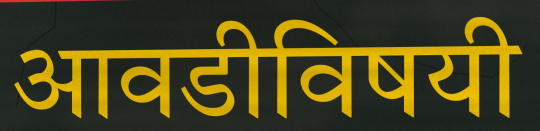
आवडीविषयी